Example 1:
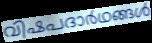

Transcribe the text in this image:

വിഷപദാർഥങ്ങൾ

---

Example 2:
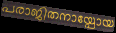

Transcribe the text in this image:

പരാജിതനായ്പോയ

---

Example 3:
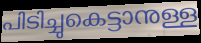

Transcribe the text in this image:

പിടിച്ചുകെട്ടാനുള്ള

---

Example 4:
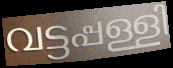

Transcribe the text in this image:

വട്ടപ്പള്ളി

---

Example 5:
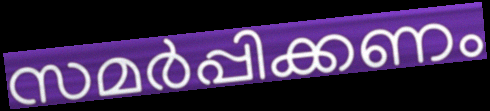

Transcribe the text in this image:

സമർപ്പിക്കണം